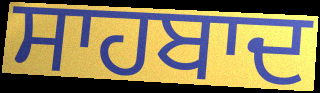
ਸਾਹਬਾਦ